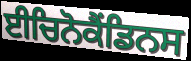
ਈਚਿਨੋਕੈਂਡਿਨਸ